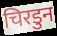
चिरडुन